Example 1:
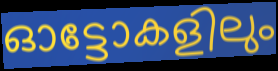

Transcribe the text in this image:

ഓട്ടോകളിലും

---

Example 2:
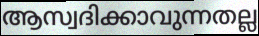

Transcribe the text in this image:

ആസ്വദിക്കാവുന്നതല്ല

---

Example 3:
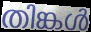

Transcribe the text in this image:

തിങ്കൾ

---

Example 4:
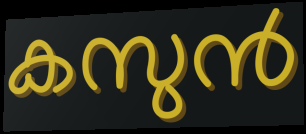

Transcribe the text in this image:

കസുൻ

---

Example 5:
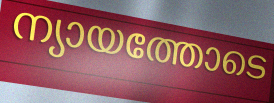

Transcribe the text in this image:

ന്യായത്തോടെ